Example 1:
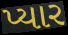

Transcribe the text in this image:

પ્યાર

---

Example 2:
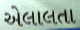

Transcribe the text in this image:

એલાલતા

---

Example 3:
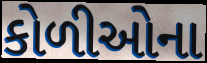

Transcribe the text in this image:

કોળીઓના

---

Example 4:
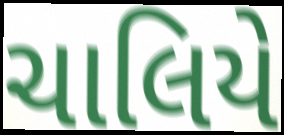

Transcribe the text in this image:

ચાલિયે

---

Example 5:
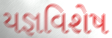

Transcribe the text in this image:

યજ્ઞવિશેષ